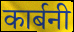
कार्बनी